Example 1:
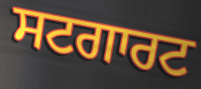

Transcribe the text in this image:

ਸਟਗਾਰਟ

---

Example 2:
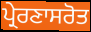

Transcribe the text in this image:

ਪ੍ਰੇਰਣਾਸਰੋਤ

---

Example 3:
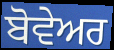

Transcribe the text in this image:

ਬੋਵੇਅਰ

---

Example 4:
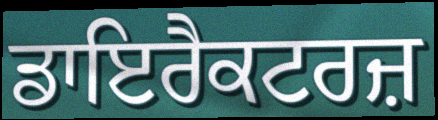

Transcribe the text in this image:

ਡਾਇਰੈਕਟਰਜ਼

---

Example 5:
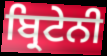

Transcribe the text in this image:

ਬ੍ਰਿਟੇਨੀ